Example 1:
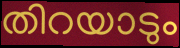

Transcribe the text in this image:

തിറയാടും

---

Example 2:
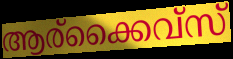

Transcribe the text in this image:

ആര്ക്കൈവ്സ്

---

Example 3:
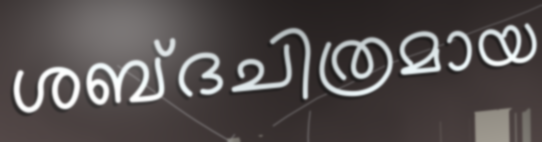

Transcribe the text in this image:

ശബ്ദചിത്രമായ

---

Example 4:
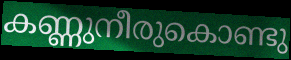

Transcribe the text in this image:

കണ്ണുനീരുകൊണ്ടു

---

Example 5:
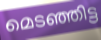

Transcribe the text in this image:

മെടഞ്ഞിട്ട